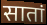
सातां